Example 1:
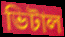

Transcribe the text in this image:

ভিটাল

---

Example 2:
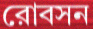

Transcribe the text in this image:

রোবসন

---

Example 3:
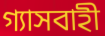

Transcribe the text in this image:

গ্যাসবাহী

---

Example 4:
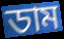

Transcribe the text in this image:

ডাম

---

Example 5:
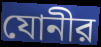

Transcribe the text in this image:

যোনীর